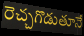
రెచ్చగొడుతూనే